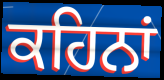
ਕਹਿਨਾਂ